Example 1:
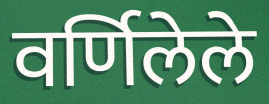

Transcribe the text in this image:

वर्णिलेले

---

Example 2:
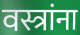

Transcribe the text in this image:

वस्त्रांना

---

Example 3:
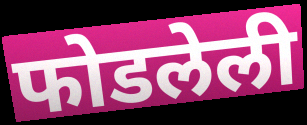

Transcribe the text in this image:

फोडलेली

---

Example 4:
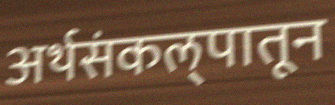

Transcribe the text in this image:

अर्थसंकल्पातून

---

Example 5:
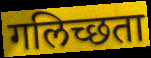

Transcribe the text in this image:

गलिच्छता